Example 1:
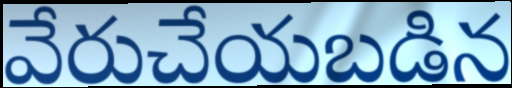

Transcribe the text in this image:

వేరుచేయబడిన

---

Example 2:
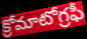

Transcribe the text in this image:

క్రోమాటోగ్రఫీ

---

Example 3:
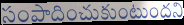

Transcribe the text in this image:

సంపాదించుకుంటుందని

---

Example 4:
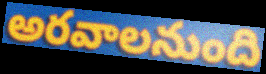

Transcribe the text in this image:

అరవాలనుంది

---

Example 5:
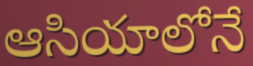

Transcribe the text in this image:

ఆసియాలోనే